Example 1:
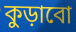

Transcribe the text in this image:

কুড়াবো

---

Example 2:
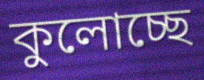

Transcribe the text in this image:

কুলোচ্ছে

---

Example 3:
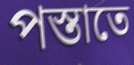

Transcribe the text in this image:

পস্তাতে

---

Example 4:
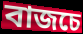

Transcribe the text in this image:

বাজচে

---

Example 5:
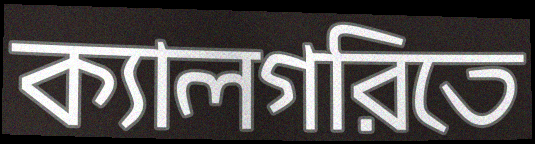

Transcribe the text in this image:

ক্যালগরিতে